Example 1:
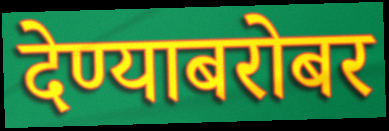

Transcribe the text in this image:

देण्याबरोबर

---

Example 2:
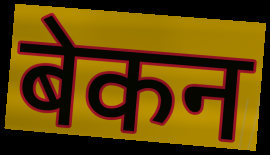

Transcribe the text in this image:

बेकन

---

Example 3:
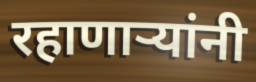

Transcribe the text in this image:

रहाणार्‍यांनी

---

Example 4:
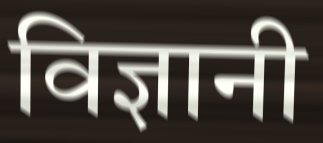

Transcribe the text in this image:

विज्ञानी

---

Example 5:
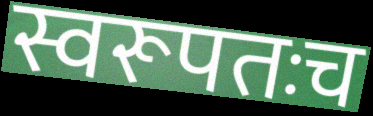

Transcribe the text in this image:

स्वरूपतःच